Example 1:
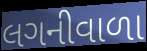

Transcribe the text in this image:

લગનીવાળા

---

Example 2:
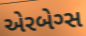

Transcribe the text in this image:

એરબેગ્સ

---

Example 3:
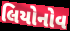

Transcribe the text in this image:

લિયોનોવ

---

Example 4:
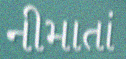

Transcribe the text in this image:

નીમાતાં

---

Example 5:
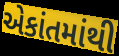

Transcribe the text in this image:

એકાંતમાંથી